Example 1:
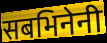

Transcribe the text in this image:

सबभिनेनी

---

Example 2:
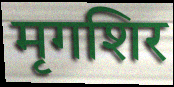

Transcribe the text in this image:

मृगशिर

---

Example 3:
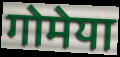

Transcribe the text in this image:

गोमेया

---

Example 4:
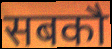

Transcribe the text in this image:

सबकौ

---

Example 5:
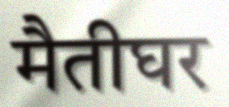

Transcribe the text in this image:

मैतीघर